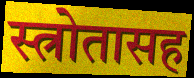
स्त्रोतासह